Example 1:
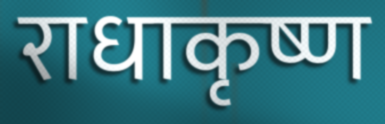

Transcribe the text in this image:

राधाकृष्ण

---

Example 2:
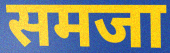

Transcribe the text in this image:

समजा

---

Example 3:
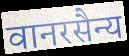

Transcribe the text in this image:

वानरसैन्य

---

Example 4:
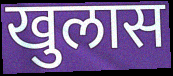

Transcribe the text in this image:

खुलास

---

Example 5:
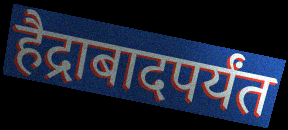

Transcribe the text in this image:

हैद्राबादपर्यंत